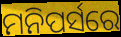
ମନିପର୍ସରେ